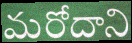
మరోదాని